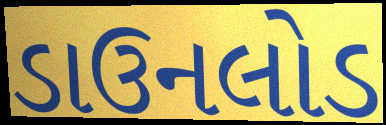
ડાઉનલોડ